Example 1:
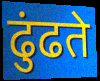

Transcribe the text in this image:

ढुंढते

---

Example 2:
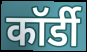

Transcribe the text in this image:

कॉर्डी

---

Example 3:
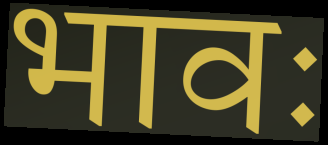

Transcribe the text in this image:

भावः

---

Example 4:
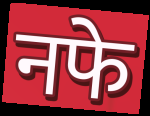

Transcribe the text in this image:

नफे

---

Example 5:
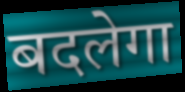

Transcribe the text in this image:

बदलेगा